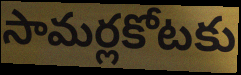
సామర్లకోటకు